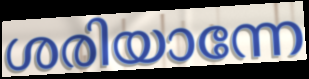
ശരിയാന്നേ